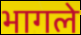
भागले